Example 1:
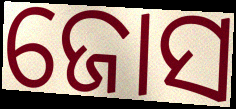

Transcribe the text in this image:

ଜୋସ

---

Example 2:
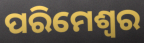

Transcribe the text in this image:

ପରିମେଶ୍ୱର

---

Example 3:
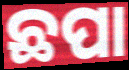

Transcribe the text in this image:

ଛପା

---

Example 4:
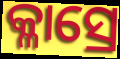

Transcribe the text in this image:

କ୍ଳାସ୍ରେ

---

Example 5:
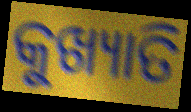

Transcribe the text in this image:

କୁଖ୍ୟାତି